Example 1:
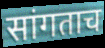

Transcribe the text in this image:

सांगताच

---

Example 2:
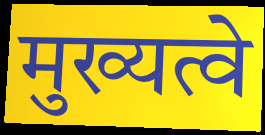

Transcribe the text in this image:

मुख्यत्वे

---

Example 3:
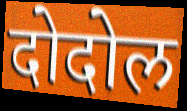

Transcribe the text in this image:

दोदोल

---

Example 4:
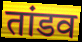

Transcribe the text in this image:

तांडव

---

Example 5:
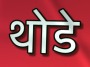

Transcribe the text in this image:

थोडे